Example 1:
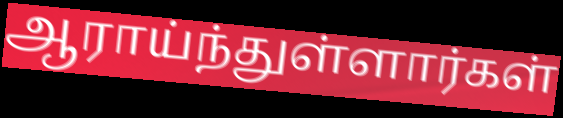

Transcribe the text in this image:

ஆராய்ந்துள்ளார்கள்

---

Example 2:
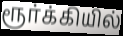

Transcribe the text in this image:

ரூர்க்கியில்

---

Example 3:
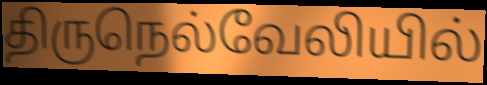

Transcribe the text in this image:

திருநெல்வேலியில்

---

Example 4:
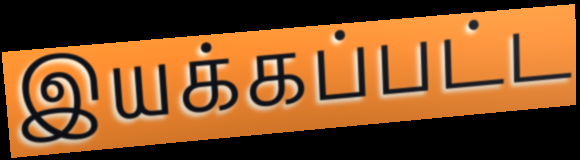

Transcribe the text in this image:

இயக்கப்பட்ட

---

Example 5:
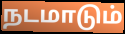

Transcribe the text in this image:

நடமாடும்